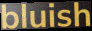
bluish